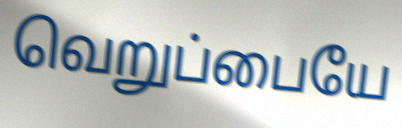
வெறுப்பையே